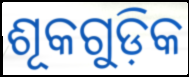
ଶୂକଗୁଡ଼ିକ